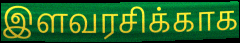
இளவரசிக்காக